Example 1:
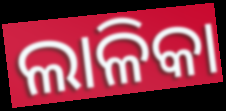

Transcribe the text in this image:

ଲାଳିକା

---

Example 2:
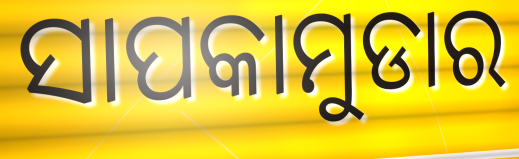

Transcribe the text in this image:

ସାପକାମୁଡାର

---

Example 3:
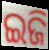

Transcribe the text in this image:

ଇଜି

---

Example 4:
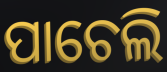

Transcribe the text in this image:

ପାଚେଲି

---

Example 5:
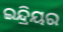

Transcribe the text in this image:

ଇନ୍ଦ୍ରିୟର